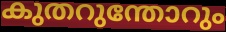
കുതറുന്തോറും